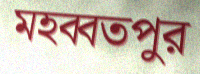
মহব্বতপুর